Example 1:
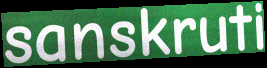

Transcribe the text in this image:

sanskruti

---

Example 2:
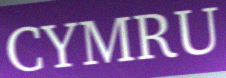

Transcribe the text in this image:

CYMRU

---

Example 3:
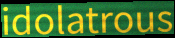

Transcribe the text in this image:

idolatrous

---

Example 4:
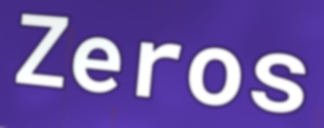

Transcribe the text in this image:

Zeros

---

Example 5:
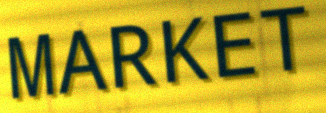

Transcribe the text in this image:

MARKET